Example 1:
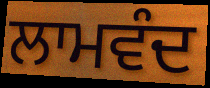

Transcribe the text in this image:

ਲਾਮਵੰਦ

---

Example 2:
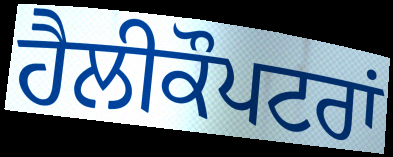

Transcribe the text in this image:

ਹੈਲੀਕੌਪਟਰਾਂ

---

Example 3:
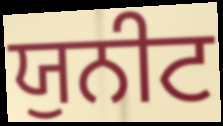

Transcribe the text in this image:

ਯੁਨੀਟ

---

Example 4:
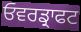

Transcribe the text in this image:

ਓਵਰਡ੍ਰਾਫਟ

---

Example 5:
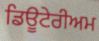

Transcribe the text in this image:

ਡਿਊਟੇਰੀਅਮ